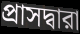
প্রাসদ্বারা